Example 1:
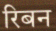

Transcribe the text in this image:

रिबन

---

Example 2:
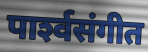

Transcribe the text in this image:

पार्श्‍वसंगीत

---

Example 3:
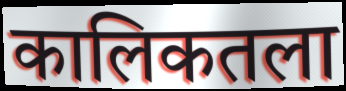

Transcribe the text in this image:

कालिकतला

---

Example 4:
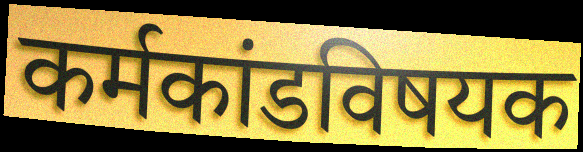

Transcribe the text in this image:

कर्मकांडविषयक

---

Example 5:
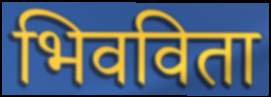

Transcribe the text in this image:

भिवविता